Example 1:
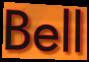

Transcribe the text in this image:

Bell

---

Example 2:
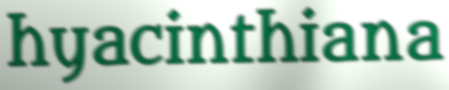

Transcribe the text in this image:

hyacinthiana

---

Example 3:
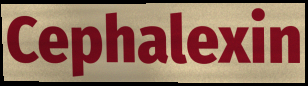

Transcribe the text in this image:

Cephalexin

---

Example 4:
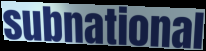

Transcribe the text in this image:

subnational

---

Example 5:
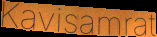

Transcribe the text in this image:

Kavisamrat